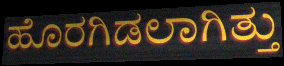
ಹೊರಗಿಡಲಾಗಿತ್ತು